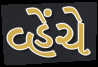
વ્હેંચે